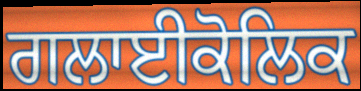
ਗਲਾਈਕੋਲਿਕ